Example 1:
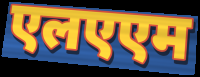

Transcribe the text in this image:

एलएएम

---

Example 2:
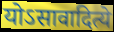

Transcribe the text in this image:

योऽसावादित्ये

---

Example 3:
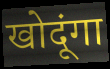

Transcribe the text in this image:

खोदूंगा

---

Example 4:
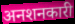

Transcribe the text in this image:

अनशनकारी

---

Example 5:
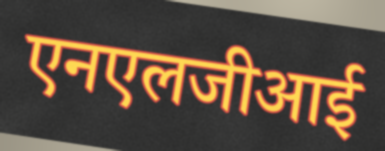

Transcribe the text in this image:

एनएलजीआई